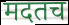
मदतच